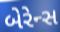
બેરેન્સ